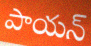
పాయన్